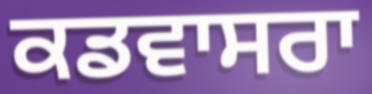
ਕਡਵਾਸਰਾ